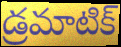
డ్రమాటిక్